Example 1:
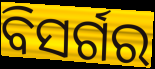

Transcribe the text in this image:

ବିସର୍ଗର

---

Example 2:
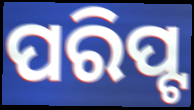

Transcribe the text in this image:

ପରିପ୍ଟ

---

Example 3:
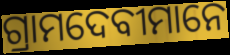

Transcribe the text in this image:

ଗ୍ରାମଦେବୀମାନେ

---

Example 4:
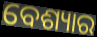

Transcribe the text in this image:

ବେଶ୍ୟାର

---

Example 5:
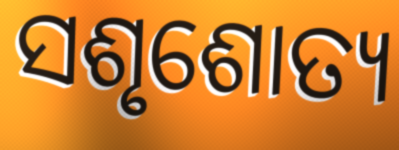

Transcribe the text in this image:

ସଶୃଶୋତ୍ୟ